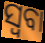
ସ୍ୱବା